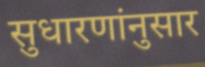
सुधारणांनुसार